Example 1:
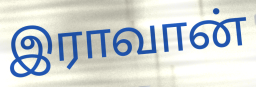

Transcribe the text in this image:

இராவான்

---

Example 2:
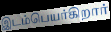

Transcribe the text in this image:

இடம்பெயர்கிறார்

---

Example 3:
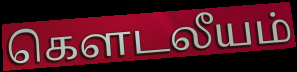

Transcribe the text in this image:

கெளடலீயம்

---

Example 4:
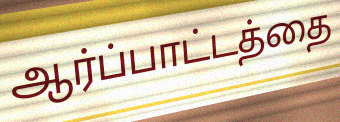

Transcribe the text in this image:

ஆர்ப்பாட்டத்தை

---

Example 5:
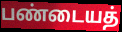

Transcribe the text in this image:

பண்டையத்